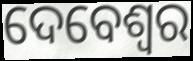
ଦେବେଶ୍ୱର